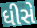
ધીસે